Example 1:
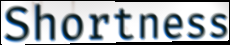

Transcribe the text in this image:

Shortness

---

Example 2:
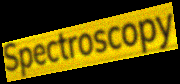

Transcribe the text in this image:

Spectroscopy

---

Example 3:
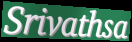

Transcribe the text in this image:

Srivathsa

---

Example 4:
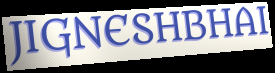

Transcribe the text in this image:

JIGNESHBHAI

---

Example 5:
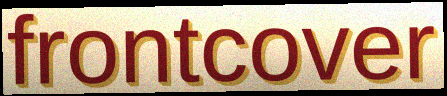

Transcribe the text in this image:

frontcover